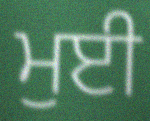
ਮੁਈ